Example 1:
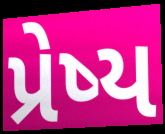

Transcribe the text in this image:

પ્રેષ્ય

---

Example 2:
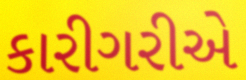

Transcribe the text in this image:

કારીગરીએ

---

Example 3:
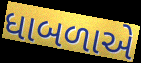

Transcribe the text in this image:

ધાબળાએ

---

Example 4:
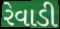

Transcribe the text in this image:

રેવાડી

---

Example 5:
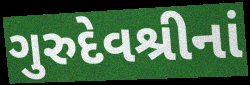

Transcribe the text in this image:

ગુરુદેવશ્રીનાં